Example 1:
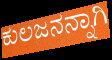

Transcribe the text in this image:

ಕುಲಜನನ್ನಾಗಿ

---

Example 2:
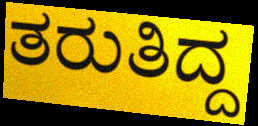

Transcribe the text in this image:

ತರುತಿದ್ದ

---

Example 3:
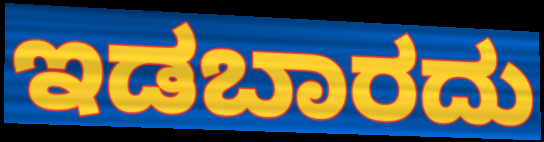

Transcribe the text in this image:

ಇಡಬಾರದು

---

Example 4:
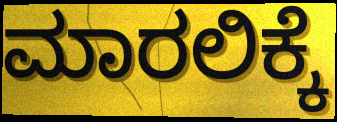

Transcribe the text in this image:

ಮಾರಲಿಕ್ಕೆ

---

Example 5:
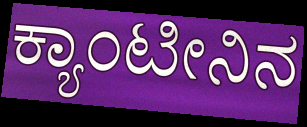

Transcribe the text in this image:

ಕ್ಯಾಂಟೀನಿನ